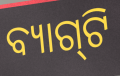
ବ୍ୟାଗ୍‌ଟି